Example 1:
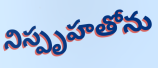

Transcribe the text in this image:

నిస్పృహతోను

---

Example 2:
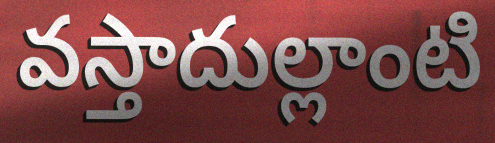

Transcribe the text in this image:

వస్తాదుల్లాంటి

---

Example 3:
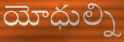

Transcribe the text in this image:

యోధుల్ని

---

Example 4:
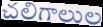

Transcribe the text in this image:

చలిగాలుల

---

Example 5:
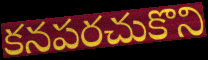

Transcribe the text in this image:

కనపరచుకొని